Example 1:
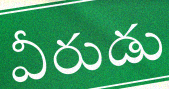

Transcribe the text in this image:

వీరుడు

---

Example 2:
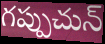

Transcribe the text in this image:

గప్పుచున్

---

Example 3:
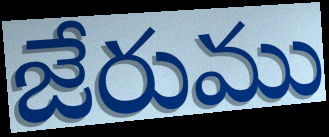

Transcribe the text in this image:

జేరుము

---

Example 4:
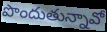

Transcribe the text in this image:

పొందుతున్నావో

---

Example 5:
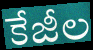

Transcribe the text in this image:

కేజీల